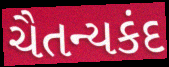
ચૈતન્યકંદ